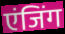
एंजिंग